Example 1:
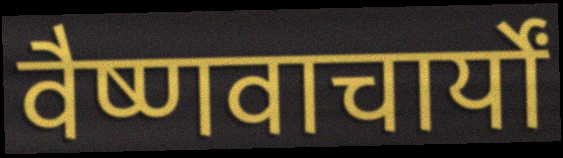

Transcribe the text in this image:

वैष्णवाचार्यों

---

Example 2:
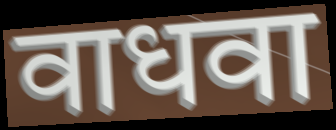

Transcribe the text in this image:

वाधवा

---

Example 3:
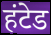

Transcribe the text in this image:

हंटेड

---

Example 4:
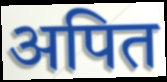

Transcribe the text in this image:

अपित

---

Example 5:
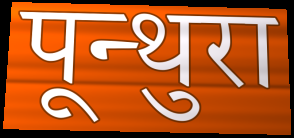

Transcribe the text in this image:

पून्थुरा